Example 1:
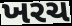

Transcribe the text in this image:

ખરચ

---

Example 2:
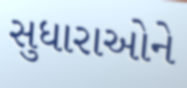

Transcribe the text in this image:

સુધારાઓને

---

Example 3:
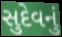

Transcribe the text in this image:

સુદેવનું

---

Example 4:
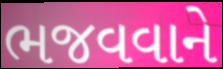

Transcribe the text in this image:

ભજવવાને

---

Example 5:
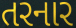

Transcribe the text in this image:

તરનાર